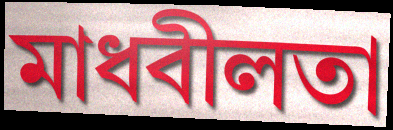
মাধবীলতা